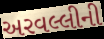
અરવલ્લીની